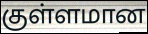
குள்ளமான